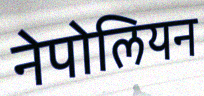
नेपोलियन